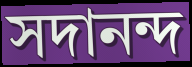
সদানন্দ